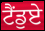
ਟੈਂਡੁਏ